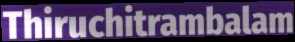
Thiruchitrambalam